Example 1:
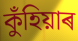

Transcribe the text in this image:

কুঁহিয়াৰ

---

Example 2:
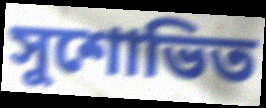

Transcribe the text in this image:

সুশোভিত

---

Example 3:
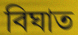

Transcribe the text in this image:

বিঘাত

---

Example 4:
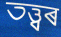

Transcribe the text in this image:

তত্ত্বৰ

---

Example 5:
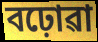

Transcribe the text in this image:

বঢ়োৱা